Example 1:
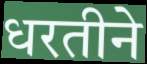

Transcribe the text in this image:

धरतीने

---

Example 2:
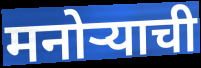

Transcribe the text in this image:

मनोऱ्याची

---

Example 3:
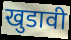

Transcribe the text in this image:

खुडावी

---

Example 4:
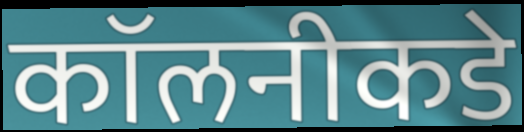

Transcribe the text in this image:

कॉलनीकडे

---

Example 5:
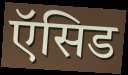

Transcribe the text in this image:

ऍसिड